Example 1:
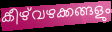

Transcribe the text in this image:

കീഴ്‌വഴക്കങ്ങളും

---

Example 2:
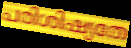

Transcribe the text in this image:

പരിശിഷ്യതേ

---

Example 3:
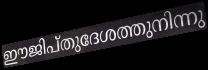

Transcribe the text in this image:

ഈജിപ്തുദേശത്തുനിന്നു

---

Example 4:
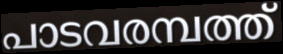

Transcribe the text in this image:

പാടവരമ്പത്ത്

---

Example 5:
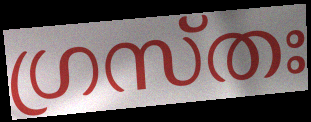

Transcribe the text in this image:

ഗ്രസ്തഃ